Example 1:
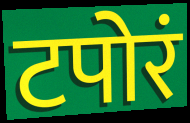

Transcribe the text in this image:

टपोरं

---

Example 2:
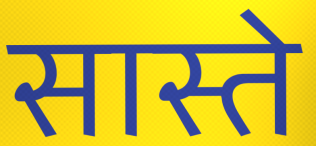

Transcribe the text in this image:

सास्ते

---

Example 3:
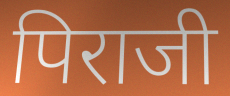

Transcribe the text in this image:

पिराजी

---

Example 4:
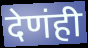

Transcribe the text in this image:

देणंही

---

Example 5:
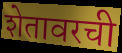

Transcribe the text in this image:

शेतावरची